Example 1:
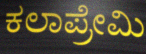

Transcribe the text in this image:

ಕಲಾಪ್ರೇಮಿ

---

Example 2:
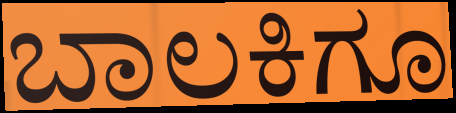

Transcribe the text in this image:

ಬಾಲಕಿಗೂ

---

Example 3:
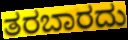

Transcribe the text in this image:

ತರಬಾರದು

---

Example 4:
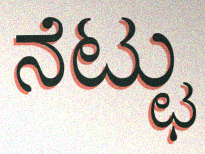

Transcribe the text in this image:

ನೆಟ್ಟು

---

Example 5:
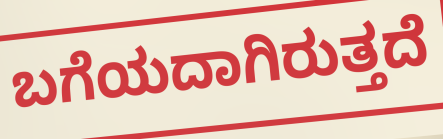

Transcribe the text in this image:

ಬಗೆಯದಾಗಿರುತ್ತದೆ